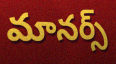
మానర్స్